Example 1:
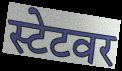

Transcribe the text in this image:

स्टेटवर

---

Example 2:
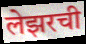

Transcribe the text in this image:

लेझरची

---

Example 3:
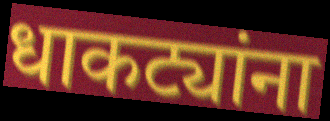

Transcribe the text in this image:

धाकट्यांना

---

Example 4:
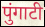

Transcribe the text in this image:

पुंगाटी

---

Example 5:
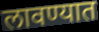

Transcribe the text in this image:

लावण्यात